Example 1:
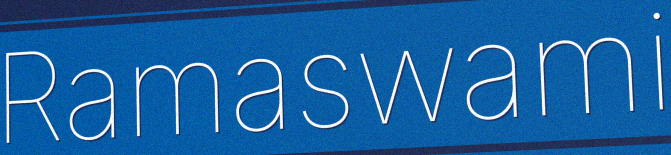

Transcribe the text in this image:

Ramaswami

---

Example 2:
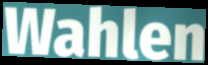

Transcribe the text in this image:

Wahlen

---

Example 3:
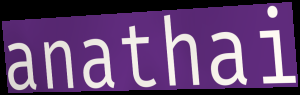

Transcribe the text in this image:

anathai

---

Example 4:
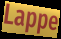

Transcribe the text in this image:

Lappe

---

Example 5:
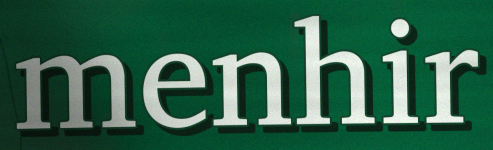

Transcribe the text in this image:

menhir